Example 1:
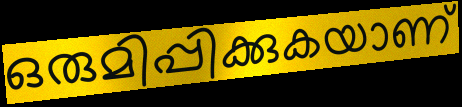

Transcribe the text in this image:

ഒരുമിപ്പിക്കുകയാണ്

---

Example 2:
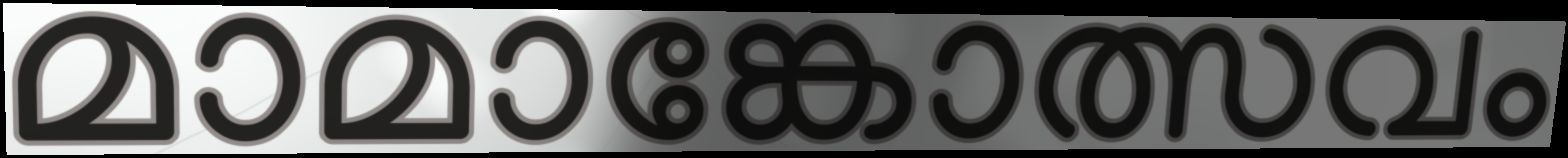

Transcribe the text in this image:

മാമാങ്കോത്സവം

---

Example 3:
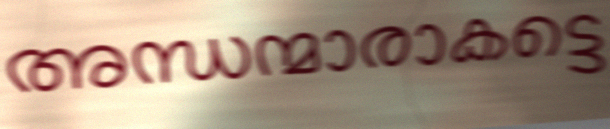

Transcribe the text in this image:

അന്ധന്മാരാകട്ടെ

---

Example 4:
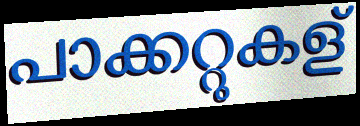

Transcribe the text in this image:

പാക്കറ്റുകള്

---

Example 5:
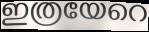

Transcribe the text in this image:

ഇത്രയേറെ